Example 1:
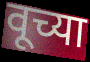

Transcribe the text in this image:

वूच्या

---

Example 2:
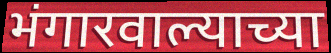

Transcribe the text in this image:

भंगारवाल्याच्या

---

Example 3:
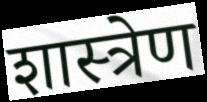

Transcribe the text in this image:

शास्त्रेण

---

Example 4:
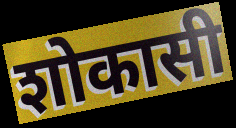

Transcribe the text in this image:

शोकासी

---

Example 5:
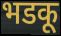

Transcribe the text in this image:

भडकू